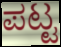
ಪಟ್ಟ